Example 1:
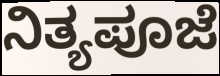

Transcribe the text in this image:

ನಿತ್ಯಪೂಜೆ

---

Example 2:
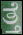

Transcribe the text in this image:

ತ್ತೆ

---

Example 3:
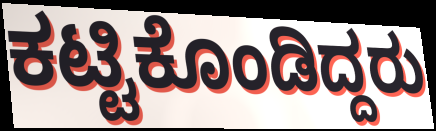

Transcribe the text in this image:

ಕಟ್ಟಿಕೊಂಡಿದ್ದರು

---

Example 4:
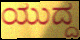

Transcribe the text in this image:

ಯುದ್ದ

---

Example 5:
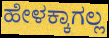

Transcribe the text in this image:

ಹೇಳಕ್ಕಾಗಲ್ಲ